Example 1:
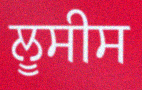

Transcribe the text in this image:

ਲੂਸੀਸ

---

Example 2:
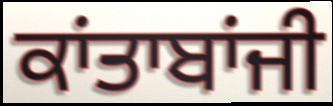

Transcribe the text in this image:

ਕਾਂਤਾਬਾਂਜੀ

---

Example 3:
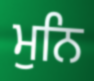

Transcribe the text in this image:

ਮੁਨਿ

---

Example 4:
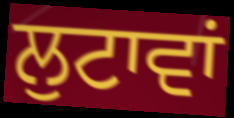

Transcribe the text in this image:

ਲੁਟਾਵਾਂ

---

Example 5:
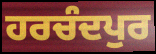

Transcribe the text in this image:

ਹਰਚੰਦਪੁਰ